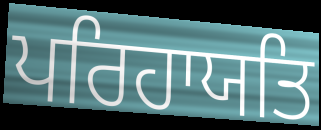
ਪਰਿਹਾਯਤਿ